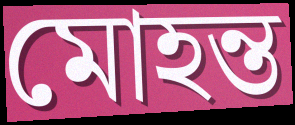
মোহন্ত